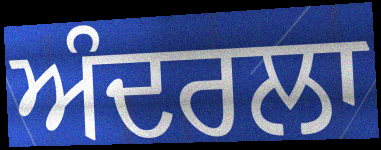
ਅੰਦਰਲਾ